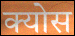
क्योस